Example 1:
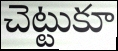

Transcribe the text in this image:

చెట్టుకూ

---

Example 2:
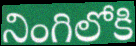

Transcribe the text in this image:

నింగిలోకి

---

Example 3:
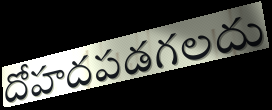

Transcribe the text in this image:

దోహదపడగలదు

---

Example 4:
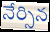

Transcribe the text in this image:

నేర్సిన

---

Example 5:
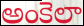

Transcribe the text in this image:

అంకెలా